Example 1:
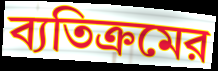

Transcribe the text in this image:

ব্যতিক্রমের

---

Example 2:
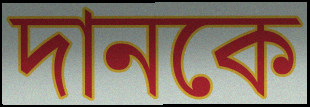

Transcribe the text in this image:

দানকে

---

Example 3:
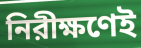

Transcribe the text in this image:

নিরীক্ষণেই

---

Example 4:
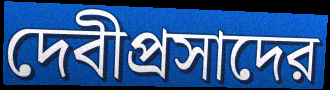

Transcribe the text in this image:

দেবীপ্রসাদের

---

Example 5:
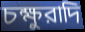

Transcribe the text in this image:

চক্ষুরাদি